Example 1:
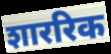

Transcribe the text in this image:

शाररिक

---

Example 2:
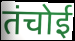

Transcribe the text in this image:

तंचोई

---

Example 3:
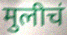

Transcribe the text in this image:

मुलीचं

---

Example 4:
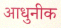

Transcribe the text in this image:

आधुनीक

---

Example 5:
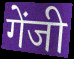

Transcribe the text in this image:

गेंजी